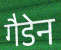
गैडेन